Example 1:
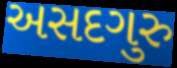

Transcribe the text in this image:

અસદગુરુ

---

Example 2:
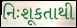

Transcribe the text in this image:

નિઃશૂકતાથી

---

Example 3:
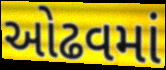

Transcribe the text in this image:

ઓઢવમાં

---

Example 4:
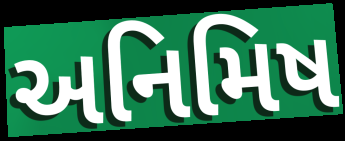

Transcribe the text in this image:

અનિમિષ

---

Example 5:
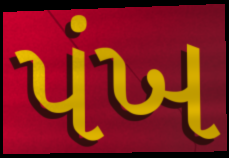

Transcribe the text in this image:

પંખ